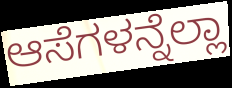
ಆಸೆಗಳನ್ನೆಲ್ಲಾ